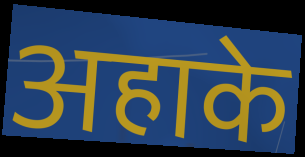
अहाके